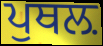
ਪੁਥਲ਼